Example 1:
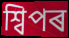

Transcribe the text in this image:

শ্বিপৰ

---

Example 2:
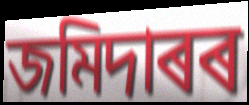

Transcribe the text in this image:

জমিদাৰৰ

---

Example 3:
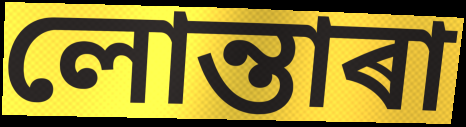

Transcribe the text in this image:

লোন্তাৰা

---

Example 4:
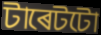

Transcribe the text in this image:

টাৰেটটো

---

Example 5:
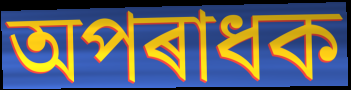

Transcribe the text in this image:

অপৰাধক